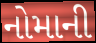
નોમાની